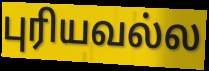
புரியவல்ல